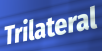
Trilateral